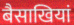
बैसाखियां